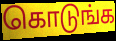
கொடுங்க